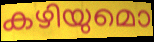
കഴിയുമൊ